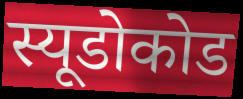
स्यूडोकोड